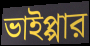
ভাইপ্পার